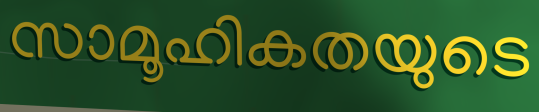
സാമൂഹികതയുടെ